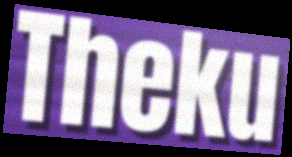
Theku